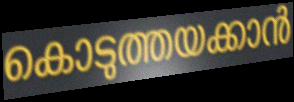
കൊടുത്തയക്കാൻ